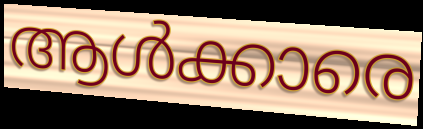
ആൾക്കാരെ